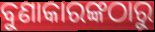
ବୁଣାକାରଙ୍କଠାରୁ